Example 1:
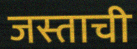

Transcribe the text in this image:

जस्ताची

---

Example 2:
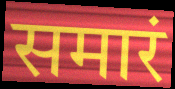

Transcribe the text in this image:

समारं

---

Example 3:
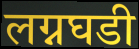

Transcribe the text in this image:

लग्नघडी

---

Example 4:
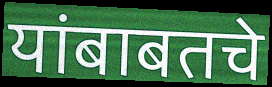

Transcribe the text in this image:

यांबाबतचे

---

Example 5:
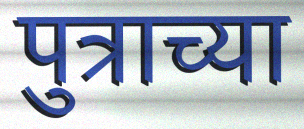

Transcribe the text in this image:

पुत्राच्या